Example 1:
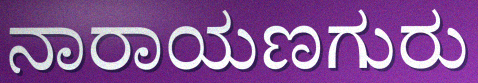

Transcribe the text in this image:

ನಾರಾಯಣಗುರು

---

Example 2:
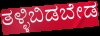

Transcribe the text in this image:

ತಳ್ಳಿಬಿಡಬೇಡ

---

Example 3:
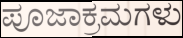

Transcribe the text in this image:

ಪೂಜಾಕ್ರಮಗಳು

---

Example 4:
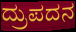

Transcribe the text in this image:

ದ್ರುಪದನ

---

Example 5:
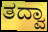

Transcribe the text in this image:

ತದ್ವಾ